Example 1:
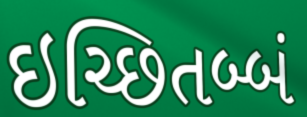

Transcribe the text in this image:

ઇચ્છિતબ્બં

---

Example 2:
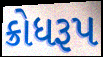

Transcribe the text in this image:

ક્રોધરૂપ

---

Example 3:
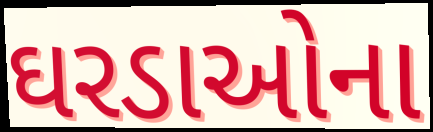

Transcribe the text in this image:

ઘરડાઓના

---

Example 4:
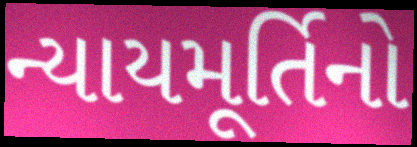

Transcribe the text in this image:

ન્યાયમૂર્તિનો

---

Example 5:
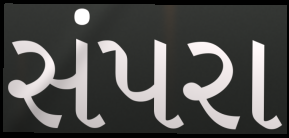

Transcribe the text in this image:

સંપરા